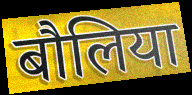
बौलिया